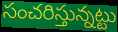
సంచరిస్తున్నట్టు